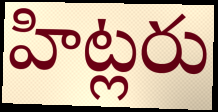
హిట్లరు